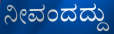
ನೀವಂದದ್ದು